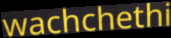
wachchethi